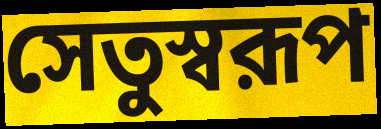
সেতুস্বরূপ